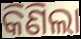
କିଣିଲା